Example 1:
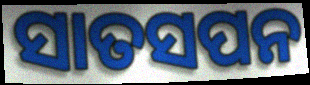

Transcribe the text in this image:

ସାତସପନ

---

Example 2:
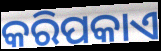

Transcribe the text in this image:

କରିପକାଏ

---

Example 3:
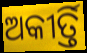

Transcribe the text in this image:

ଅକୀର୍ତ୍ତି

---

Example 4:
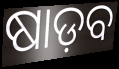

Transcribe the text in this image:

ଷାଡ଼ବ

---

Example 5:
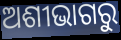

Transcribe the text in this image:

ଅଶୀଭାଗରୁ